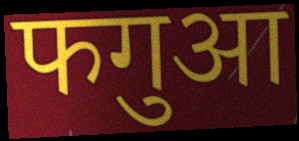
फगुआ